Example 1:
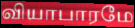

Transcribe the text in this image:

வியாபாரமே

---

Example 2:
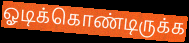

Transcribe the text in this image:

ஓடிக்கொண்டிருக்க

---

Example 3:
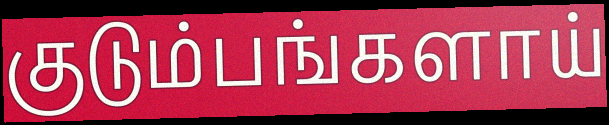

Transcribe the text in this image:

குடும்பங்களாய்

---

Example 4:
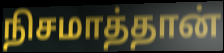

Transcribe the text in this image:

நிசமாத்தான்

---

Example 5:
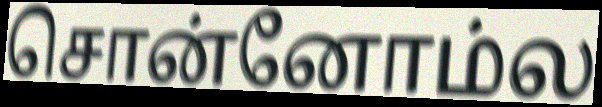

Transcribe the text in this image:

சொன்னோம்ல